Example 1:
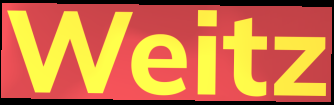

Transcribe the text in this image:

Weitz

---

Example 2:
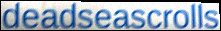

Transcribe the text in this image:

deadseascrolls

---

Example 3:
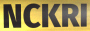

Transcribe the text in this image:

NCKRI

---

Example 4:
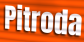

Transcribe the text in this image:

Pitroda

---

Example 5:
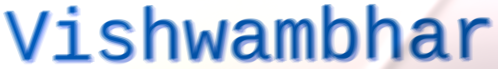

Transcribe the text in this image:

Vishwambhar